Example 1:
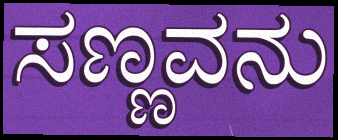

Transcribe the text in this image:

ಸಣ್ಣವನು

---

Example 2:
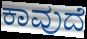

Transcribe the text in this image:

ಕಾವುದೆ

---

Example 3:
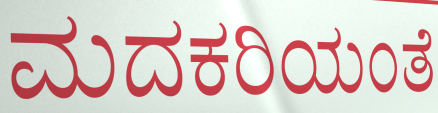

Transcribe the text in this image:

ಮದಕರಿಯಂತೆ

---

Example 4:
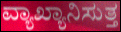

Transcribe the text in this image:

ವ್ಯಾಖ್ಯಾನಿಸುತ್ತ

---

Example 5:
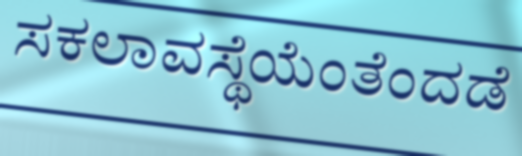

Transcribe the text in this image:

ಸಕಲಾವಸ್ಥೆಯೆಂತೆಂದಡೆ